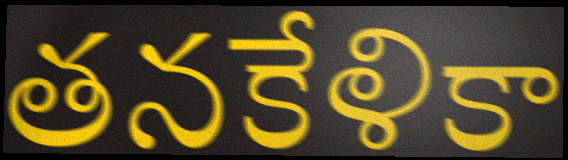
తనకేళికా